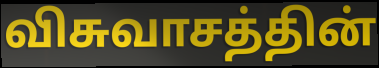
விசுவாசத்தின்